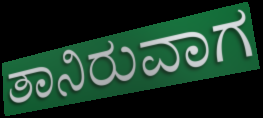
ತಾನಿರುವಾಗ